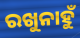
ରଖୁନାହୁଁ